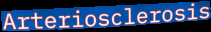
Arteriosclerosis